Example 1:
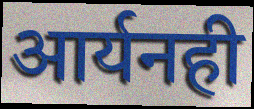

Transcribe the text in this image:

आर्यनही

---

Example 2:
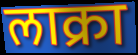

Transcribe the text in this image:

लाक्रा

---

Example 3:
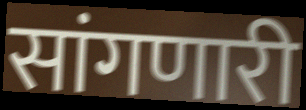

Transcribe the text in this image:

सांगणारी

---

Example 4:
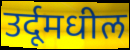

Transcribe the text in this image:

उर्दूमधील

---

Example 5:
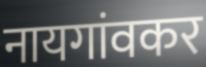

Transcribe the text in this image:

नायगांवकर